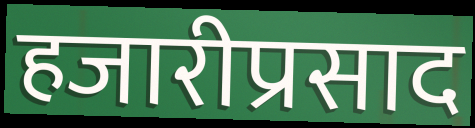
हजारीप्रसाद